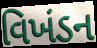
વિખંડન